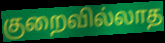
குறைவில்லாத